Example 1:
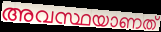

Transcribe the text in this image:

അവസ്ഥയാണത്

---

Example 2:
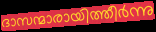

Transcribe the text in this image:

ദാസന്മാരായിത്തീർന്നു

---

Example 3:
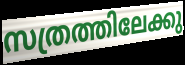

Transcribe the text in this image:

സത്രത്തിലേക്കു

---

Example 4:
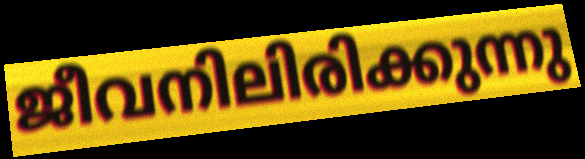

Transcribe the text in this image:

ജീവനിലിരിക്കുന്നു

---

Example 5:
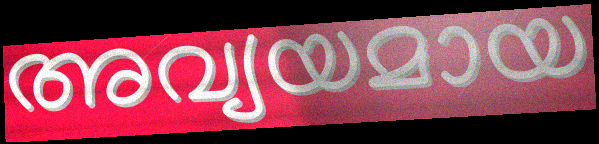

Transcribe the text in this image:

അവ്യയമായ